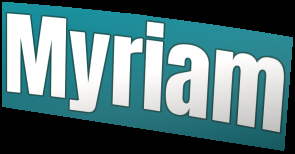
Myriam